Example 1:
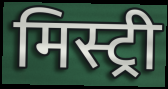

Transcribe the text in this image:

मिस्ट्री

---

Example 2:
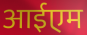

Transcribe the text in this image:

आईएम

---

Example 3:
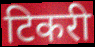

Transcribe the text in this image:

टिकरी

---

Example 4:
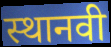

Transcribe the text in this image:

स्थानवी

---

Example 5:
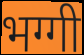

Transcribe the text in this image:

भग्गी